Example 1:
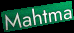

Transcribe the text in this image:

Mahtma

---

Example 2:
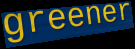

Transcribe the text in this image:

greener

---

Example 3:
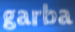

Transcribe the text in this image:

garba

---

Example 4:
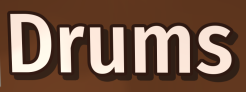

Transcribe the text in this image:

Drums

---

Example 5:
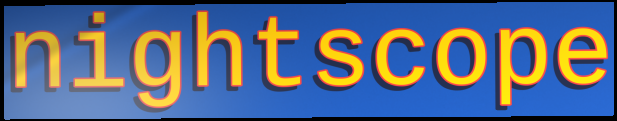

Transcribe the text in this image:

nightscope